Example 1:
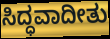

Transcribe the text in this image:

ಸಿದ್ಧವಾದೀತು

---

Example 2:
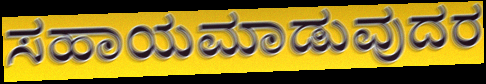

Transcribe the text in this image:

ಸಹಾಯಮಾಡುವುದರ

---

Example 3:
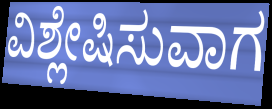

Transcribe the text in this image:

ವಿಶ್ಲೇಷಿಸುವಾಗ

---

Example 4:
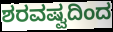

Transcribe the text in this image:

ಶರವಷ್ವದಿಂದ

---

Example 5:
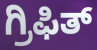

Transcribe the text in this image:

ಗ್ರಿಫಿತ್